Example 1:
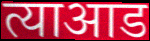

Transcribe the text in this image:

त्याआड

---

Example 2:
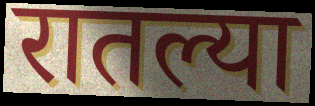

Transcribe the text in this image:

रातल्या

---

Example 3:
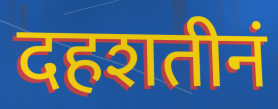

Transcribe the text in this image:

दहशतीनं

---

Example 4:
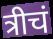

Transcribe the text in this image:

त्रीचं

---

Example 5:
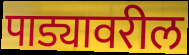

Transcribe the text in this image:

पाड्यावरील